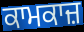
ਕਾਮਕਾਜ਼